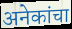
अनेकांचा